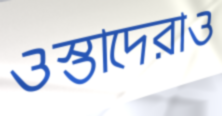
ওস্তাদেরাও